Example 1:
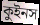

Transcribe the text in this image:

কুইনস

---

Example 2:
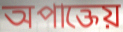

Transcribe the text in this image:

অপাক্তেয়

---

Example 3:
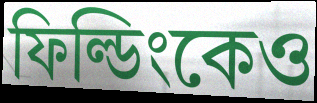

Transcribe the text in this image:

ফিল্ডিংকেও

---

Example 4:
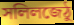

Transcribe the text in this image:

সলিলজেঠু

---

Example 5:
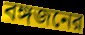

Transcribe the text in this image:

বঙ্গজনের